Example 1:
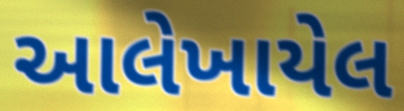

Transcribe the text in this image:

આલેખાયેલ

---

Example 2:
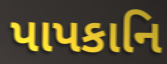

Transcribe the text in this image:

પાપકાનિ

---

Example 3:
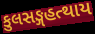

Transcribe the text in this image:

કુલસઙ્ગહત્થાય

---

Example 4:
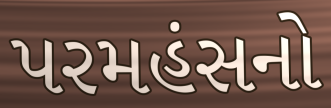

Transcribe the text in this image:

પરમહંસનો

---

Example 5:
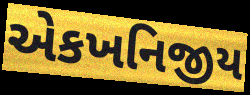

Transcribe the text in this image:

એકખનિજીય